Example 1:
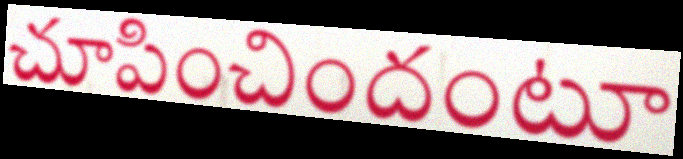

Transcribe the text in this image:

చూపించిందంటూ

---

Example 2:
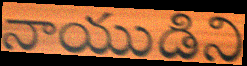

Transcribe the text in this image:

నాయుడిని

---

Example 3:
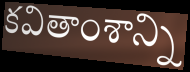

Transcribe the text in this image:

కవితాంశాన్ని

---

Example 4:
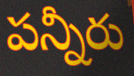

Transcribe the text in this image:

పన్నీరు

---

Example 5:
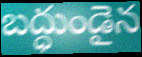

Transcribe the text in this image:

బద్ధుండైన